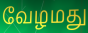
வேழமது